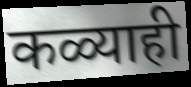
कळ्याही